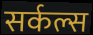
सर्कल्‍स